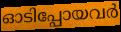
ഓടിപ്പോയവർ